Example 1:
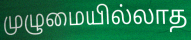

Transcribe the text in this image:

முழுமையில்லாத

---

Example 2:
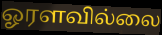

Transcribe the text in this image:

ஓரளவில்லை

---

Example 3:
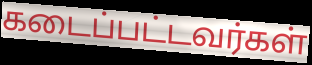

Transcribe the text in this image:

கடைப்பட்டவர்கள்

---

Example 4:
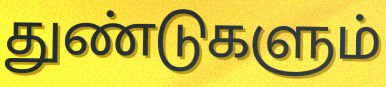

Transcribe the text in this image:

துண்டுகளும்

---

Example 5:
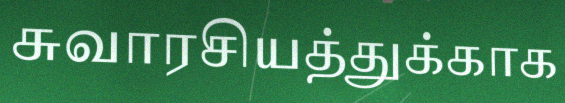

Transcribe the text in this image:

சுவாரசியத்துக்காக